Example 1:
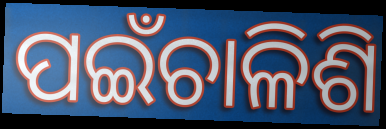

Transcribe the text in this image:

ପଇଁଚାଳିଶି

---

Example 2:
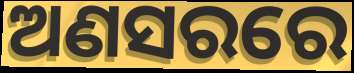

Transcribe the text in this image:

ଅଣସରରେ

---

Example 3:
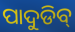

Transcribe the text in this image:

ପାଦୁଡିବ୍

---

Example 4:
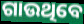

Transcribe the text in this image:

ଗାଉଥିବେ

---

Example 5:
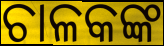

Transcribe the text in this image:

ଚାଳକଙ୍କ